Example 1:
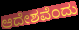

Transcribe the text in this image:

ಆದೇಶವೆಂದು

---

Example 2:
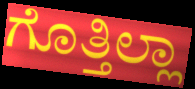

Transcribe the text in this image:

ಗೊತ್ತಿಲ್ಲಾ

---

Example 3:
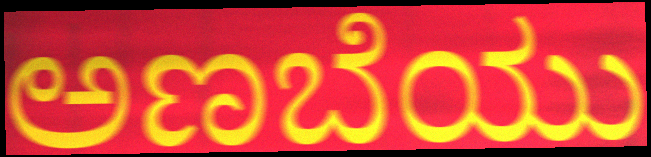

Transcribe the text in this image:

ಅಣಬೆಯು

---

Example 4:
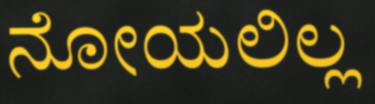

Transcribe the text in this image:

ನೋಯಲಿಲ್ಲ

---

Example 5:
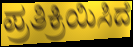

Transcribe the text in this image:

ಪ್ರತಿಕ್ರಿಯಿಸಿದೆ